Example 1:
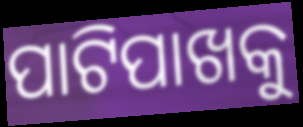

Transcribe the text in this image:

ପାଟିପାଖକୁ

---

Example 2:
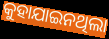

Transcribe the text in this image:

କୁହାଯାଇନଥିଲା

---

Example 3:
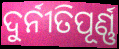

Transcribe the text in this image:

ଦୁର୍ନୀତିପୂର୍ଣ୍ଣ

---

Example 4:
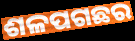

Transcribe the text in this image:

ଶଳପଗଛର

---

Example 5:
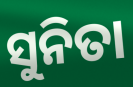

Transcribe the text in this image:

ସୁନିତା